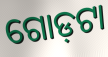
ଗୋଡ଼ଟା